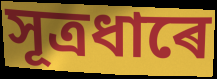
সূত্ৰধাৰে